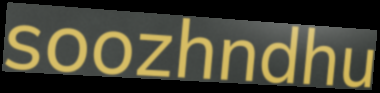
soozhndhu